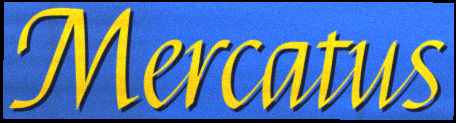
Mercatus